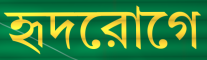
হৃদরোগে